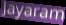
Jayaram